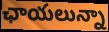
ఛాయలున్నా